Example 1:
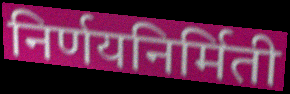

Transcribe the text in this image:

निर्णयनिर्मिती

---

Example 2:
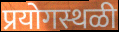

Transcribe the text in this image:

प्रयोगस्थळी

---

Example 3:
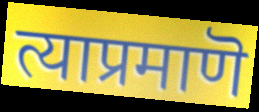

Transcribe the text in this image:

त्याप्रमाणॆ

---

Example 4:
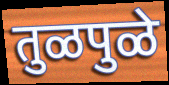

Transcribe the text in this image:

तुळपुळे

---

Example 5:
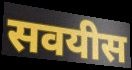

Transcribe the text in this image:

सवयीस